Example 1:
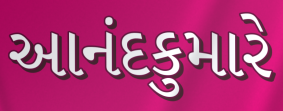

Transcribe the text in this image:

આનંદકુમારે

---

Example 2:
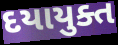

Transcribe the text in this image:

દયાયુક્ત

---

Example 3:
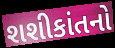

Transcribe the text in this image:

શશીકાંતનો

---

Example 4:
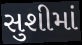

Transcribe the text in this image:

સુશીમાં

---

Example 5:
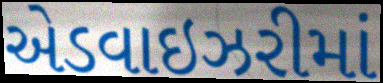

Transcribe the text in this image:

એડવાઇઝરીમાં